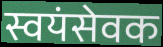
स्वयंसेवक